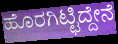
ಹೊರಗಿಟ್ಟಿದ್ದೇನೆ